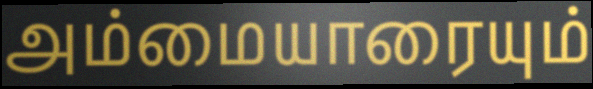
அம்மையாரையும்